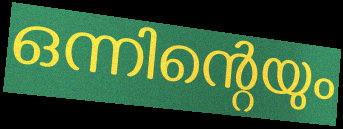
ഒന്നിന്റെയും